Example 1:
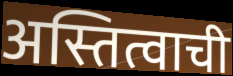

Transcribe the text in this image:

अस्तित्वाची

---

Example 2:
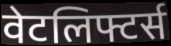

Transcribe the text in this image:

वेटलिफ्टर्स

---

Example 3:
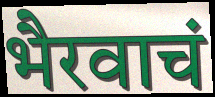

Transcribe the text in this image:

भैरवाचं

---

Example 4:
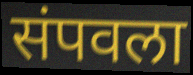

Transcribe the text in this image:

संपवला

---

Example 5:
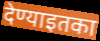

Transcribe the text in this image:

देण्याइतका